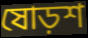
ষোড়শ